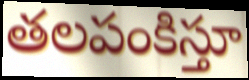
తలపంకిస్తూ